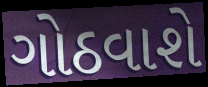
ગોઠવાશે